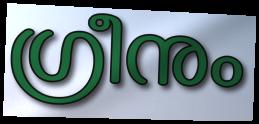
ഗ്രീനും